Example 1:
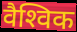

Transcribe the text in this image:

वैश्‍विक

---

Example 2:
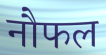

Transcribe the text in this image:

नौफल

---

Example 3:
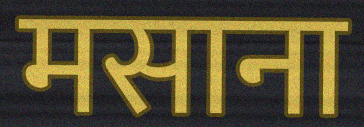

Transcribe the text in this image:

मसाना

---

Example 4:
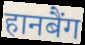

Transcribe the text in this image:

हानबैंग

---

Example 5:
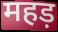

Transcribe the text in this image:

महड़